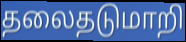
தலைதடுமாறி